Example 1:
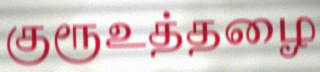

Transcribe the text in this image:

குரூஉத்தழை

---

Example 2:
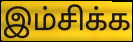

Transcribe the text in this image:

இம்சிக்க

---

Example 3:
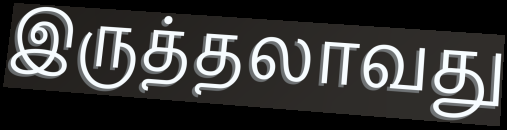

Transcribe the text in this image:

இருத்தலாவது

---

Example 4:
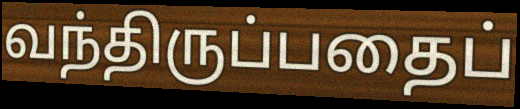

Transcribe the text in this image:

வந்திருப்பதைப்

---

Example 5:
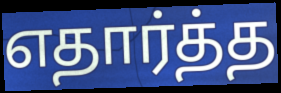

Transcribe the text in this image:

எதார்த்த